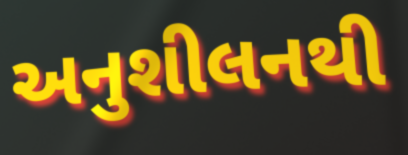
અનુશીલનથી